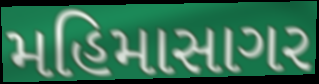
મહિમાસાગર